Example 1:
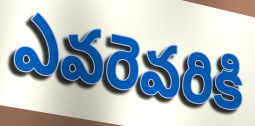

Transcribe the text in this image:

ఎవరెవరికి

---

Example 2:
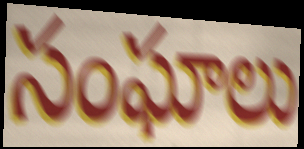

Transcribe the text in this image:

సంఘాలు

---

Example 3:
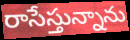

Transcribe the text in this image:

రాసేస్తున్నాను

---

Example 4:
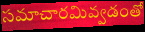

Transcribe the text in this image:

సమాచారమివ్వడంతో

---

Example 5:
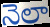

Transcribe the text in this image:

నెలా